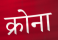
क्रोना